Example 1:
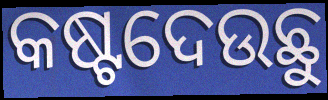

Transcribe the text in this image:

କଷ୍ଟଦେଉଛୁ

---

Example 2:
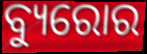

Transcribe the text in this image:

ବ୍ୟୁରୋର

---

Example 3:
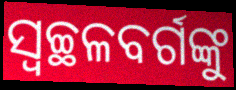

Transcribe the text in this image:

ସ୍ବଚ୍ଛଳବର୍ଗଙ୍କୁ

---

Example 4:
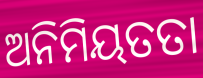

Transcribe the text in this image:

ଅନିମିୟତତା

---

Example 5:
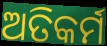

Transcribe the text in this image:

ଅତିକର୍ମ